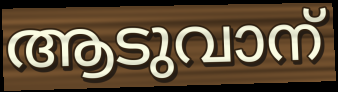
ആടുവാന്